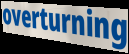
overturning